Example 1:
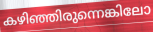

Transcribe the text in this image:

കഴിഞ്ഞിരുന്നെങ്കിലോ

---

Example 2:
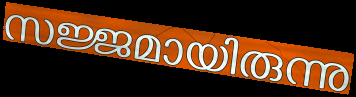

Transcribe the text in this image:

സജ്ജമായിരുന്നു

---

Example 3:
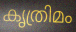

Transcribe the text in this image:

കൃത്രിമം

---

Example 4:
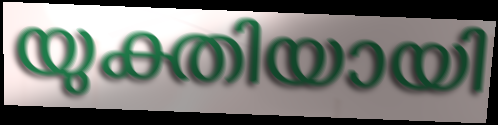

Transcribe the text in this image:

യുക്തിയായി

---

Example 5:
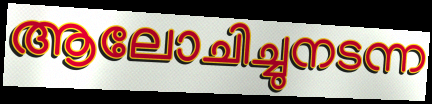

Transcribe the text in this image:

ആലോചിച്ചുനടന്ന